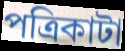
পত্রিকাটা